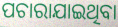
ପଚାରାଯାଇଥିବା